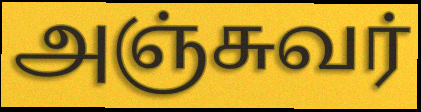
அஞ்சுவர்